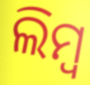
ଲିମ୍ବ